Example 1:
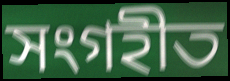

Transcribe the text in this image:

সংগহীত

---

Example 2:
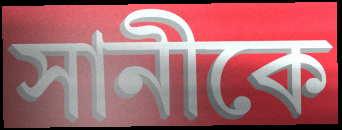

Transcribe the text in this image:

সানীকে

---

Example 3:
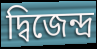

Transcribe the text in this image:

দ্বিজেন্দ্র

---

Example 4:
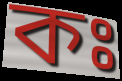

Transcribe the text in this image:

কঃ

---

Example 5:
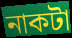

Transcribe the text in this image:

নাকটা